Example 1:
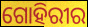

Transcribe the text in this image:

ଗୋହିରୀର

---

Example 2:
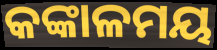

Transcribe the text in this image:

କଙ୍କାଳମୟ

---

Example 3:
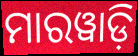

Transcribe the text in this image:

ମାରୱାଡ଼ି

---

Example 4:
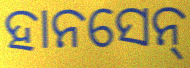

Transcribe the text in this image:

ହାନସେନ୍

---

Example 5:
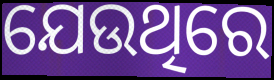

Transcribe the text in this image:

ଯେଉଥିରେ